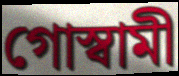
গোস্বামী